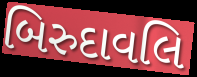
બિરુદાવલિ